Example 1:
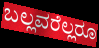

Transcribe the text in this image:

ಬಲ್ಲವರೆಲ್ಲರೂ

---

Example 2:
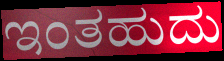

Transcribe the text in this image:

ಇಂತಹುದು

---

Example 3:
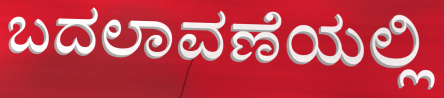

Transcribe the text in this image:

ಬದಲಾವಣೆಯಲ್ಲಿ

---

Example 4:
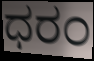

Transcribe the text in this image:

ಧರಂ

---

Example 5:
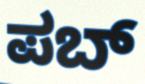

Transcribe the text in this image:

ಪಬ್